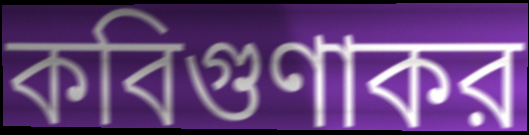
কবিগুণাকর